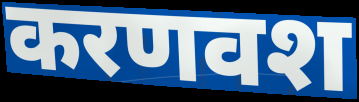
करणवश